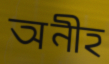
অনীহ